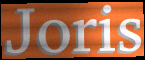
Joris